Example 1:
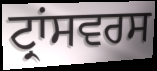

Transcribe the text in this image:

ਟ੍ਰਾਂਸਵਰਸ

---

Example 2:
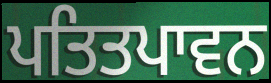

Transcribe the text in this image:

ਪਤਿਤਪਾਵਨ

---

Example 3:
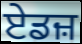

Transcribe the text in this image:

ਏਡਜ਼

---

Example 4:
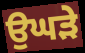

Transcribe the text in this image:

ਉਘੜੇ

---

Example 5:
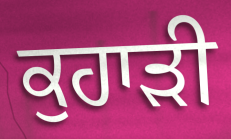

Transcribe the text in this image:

ਕੁਹਾੜੀ